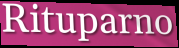
Rituparno